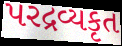
પરદ્રવ્યકૃત